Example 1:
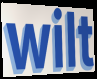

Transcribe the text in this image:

wilt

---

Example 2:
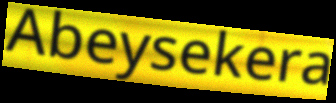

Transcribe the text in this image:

Abeysekera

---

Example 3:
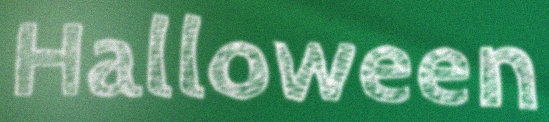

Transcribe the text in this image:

Halloween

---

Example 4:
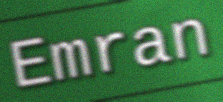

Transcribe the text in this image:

Emran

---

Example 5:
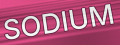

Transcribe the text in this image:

SODIUM